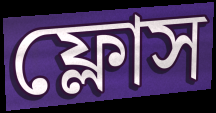
ফ্লোস